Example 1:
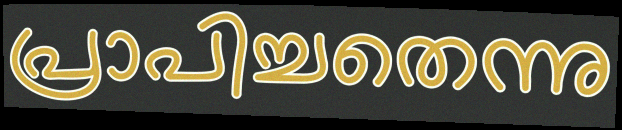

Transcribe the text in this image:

പ്രാപിച്ചതെന്നു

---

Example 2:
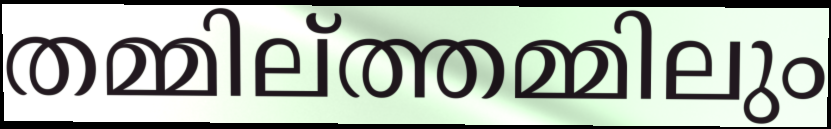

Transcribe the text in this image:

തമ്മില്ത്തമ്മിലും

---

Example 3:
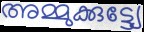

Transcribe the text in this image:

അമ്മുക്കുട്ട്യേ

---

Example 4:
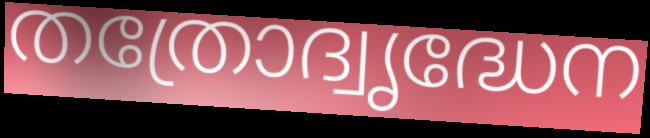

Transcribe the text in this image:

തത്രോദ്വൃദ്ധേന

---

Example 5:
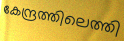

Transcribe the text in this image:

കേന്ദ്രത്തിലെത്തി